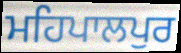
ਮਹਿਪਾਲਪੁਰ